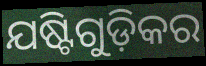
ଯଷ୍ଟିଗୁଡ଼ିକର